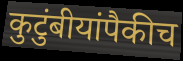
कुटुंबीयांपैकीच